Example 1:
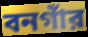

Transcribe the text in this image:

বনগাঁর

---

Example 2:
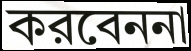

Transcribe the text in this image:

করবেননা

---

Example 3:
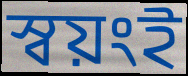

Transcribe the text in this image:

স্বয়ংই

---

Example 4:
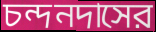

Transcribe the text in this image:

চন্দনদাসের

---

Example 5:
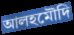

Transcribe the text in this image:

আলহমৌদি